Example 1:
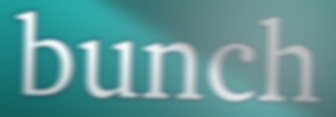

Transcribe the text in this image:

bunch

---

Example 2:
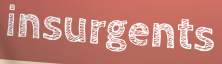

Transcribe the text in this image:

insurgents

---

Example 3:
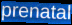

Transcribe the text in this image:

prenatal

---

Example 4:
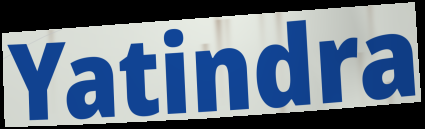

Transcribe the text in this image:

Yatindra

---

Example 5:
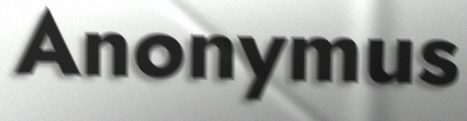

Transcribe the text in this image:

Anonymus